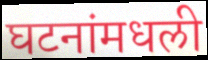
घटनांमधली